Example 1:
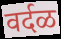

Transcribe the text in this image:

वर्दळ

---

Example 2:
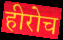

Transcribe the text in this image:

हीरोच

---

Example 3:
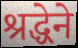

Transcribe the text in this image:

श्रद्धेने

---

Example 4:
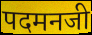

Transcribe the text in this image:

पदमनजी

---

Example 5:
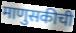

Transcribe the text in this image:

माणुसकीची